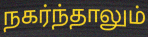
நகர்ந்தாலும்